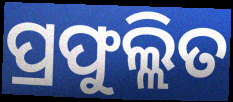
ପ୍ରଫୁଲ୍ଲିତ